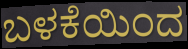
ಬಳಕೆಯಿಂದ